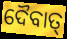
ଦୈବାତ୍